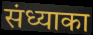
संध्याका